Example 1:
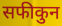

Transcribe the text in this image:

सफीकुन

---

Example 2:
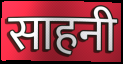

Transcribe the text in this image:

साहनी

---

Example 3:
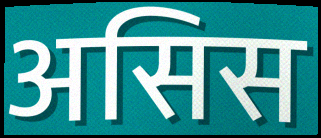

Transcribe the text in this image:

असिस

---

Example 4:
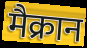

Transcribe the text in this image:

मैक्रान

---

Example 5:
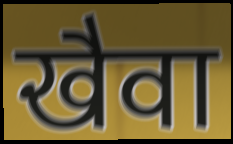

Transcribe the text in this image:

खैवा